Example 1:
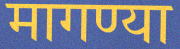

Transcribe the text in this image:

मागण्या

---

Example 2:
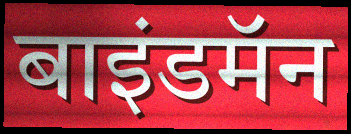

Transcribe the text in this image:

बाइंडमॅन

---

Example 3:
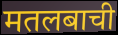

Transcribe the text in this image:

मतलबाची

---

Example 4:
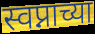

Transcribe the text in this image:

स्वप्नाच्या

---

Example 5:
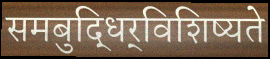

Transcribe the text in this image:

समबुद्धिर्विशिष्यते